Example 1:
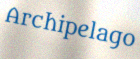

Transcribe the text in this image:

Archipelago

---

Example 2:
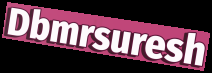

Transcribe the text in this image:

Dbmrsuresh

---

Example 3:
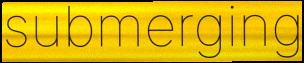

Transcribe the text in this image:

submerging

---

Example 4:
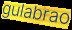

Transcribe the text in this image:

gulabrao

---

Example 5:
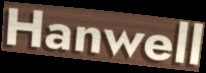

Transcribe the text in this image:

Hanwell